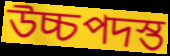
উচ্চপদস্ত